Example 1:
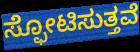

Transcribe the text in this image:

ಸ್ಫೋಟಿಸುತ್ತವೆ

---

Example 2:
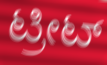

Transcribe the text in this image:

ಟ್ರೀಟ್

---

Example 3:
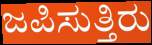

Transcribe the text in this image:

ಜಪಿಸುತ್ತಿರು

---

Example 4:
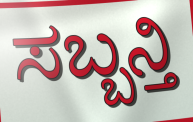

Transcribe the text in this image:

ಸಬ್ಬನ್ತಿ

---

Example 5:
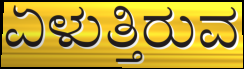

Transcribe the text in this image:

ಏಳುತ್ತಿರುವ